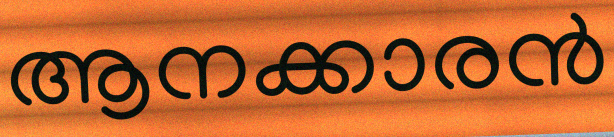
ആനക്കാരൻ